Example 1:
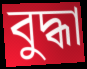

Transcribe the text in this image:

বুদ্ধা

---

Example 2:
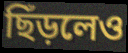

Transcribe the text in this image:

ছিঁড়লেও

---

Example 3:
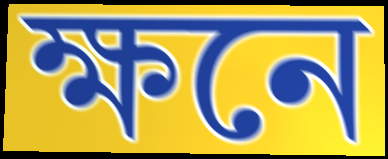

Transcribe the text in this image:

ক্ষনে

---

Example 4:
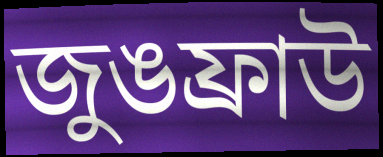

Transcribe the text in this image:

জুঙফ্রাউ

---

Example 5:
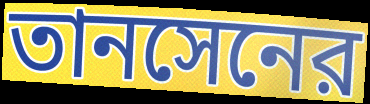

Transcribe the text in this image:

তানসেনের